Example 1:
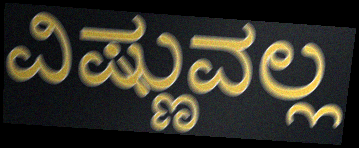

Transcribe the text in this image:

ವಿಷ್ಣುವಲ್ಲ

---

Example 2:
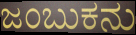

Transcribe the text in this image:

ಜಂಬುಕನು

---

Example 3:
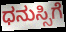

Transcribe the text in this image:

ಧನುಸ್ಸಿಗೆ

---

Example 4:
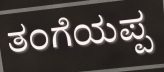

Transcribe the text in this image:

ತಂಗೆಯಪ್ಪ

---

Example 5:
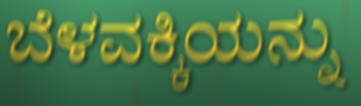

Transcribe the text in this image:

ಬೆಳವಕ್ಕಿಯನ್ನು